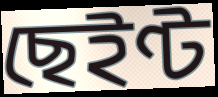
ছেইণ্ট